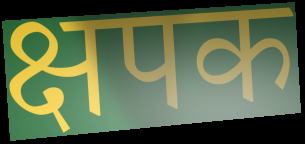
क्षपक